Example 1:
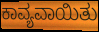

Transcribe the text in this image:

ಕಾವ್ಯವಾಯಿತು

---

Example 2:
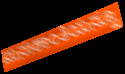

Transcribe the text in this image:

ಮನಃಶಾಂತಿಯನ್ನೂ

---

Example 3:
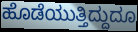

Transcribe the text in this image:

ಹೊಡೆಯುತ್ತಿದ್ದುದೂ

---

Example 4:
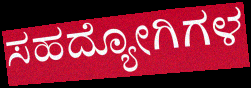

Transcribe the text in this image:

ಸಹದ್ಯೋಗಿಗಳ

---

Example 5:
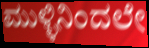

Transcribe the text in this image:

ಮುಳ್ಳಿನಿಂದಲೇ